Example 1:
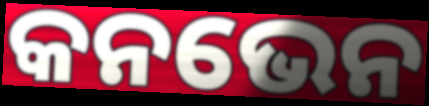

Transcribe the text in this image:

କନଭେନ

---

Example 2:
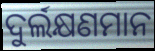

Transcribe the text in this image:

ଦୁର୍ଲକ୍ଷଣମାନ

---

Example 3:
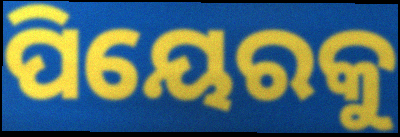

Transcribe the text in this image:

ପିୟେରକୁ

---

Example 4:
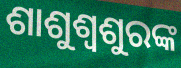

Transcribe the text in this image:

ଶାଶୁଶ୍ୱଶୁରଙ୍କ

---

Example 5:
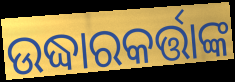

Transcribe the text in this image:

ଉଦ୍ଧାରକର୍ତ୍ତାଙ୍କ